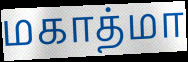
மகாத்மா